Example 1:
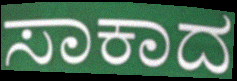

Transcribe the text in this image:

ಸಾಕಾದ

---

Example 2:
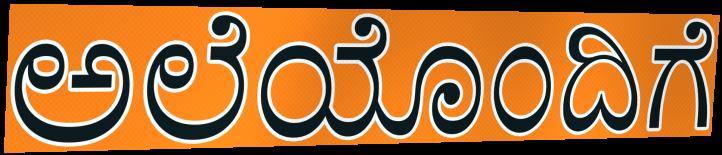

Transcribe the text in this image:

ಅಲೆಯೊಂದಿಗೆ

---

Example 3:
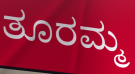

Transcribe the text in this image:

ತೂರಮ್ಮ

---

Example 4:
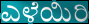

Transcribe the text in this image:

ಎಳೆಯಿರಿ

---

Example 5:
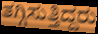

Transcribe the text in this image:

ತಗ್ಗಿಸುತ್ತಿದ್ದರು